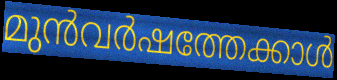
മുൻവർഷത്തേക്കാൾ